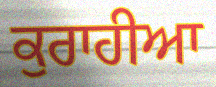
ਕੁਰਾਹੀਆ